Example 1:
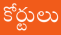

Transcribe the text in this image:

కోర్టులు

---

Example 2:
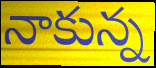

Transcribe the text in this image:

నాకున్న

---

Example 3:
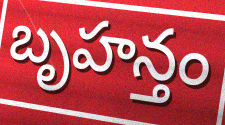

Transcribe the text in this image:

బృహన్తం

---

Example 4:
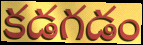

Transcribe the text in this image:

కడగడం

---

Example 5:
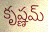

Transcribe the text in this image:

కృష్ణమ్